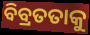
ବିବ୍ରତତାକୁ